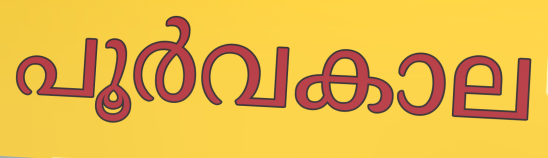
പൂർവകാല